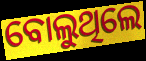
ବୋଲୁଥିଲେ